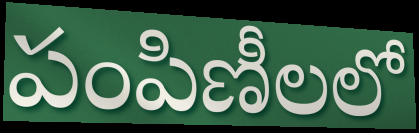
పంపిణీలలో